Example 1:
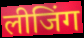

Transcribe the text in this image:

लीजिंग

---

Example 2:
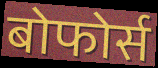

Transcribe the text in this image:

बोफोर्स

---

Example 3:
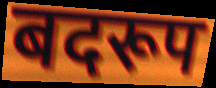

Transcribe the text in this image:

बदरूप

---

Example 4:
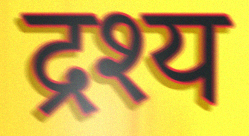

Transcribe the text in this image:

द्रश्य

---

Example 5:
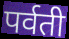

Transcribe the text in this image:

पर्वती